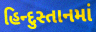
હિન્દુસ્તાનમાં